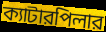
ক্যাটারপিলার